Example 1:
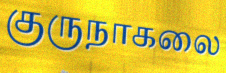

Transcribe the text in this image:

குருநாகலை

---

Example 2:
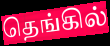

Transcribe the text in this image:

தெங்கில்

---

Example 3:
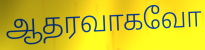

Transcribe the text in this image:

ஆதரவாகவோ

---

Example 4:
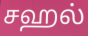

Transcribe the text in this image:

சஹல்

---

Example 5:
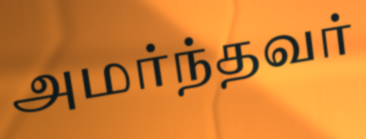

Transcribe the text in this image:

அமர்ந்தவர்